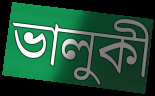
ভালুকী